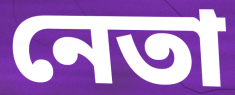
নেতা